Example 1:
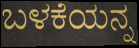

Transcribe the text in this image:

ಬಳಕೆಯನ್ನ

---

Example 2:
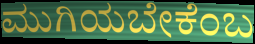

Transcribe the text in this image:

ಮುಗಿಯಬೇಕೆಂಬ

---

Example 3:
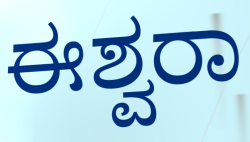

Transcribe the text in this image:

ಈಶ್ವರಾ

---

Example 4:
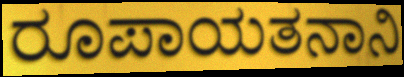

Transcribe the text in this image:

ರೂಪಾಯತನಾನಿ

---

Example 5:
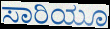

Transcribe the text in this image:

ಸಾರಿಯೂ